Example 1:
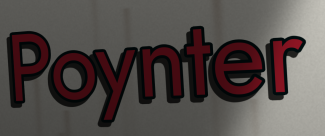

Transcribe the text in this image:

Poynter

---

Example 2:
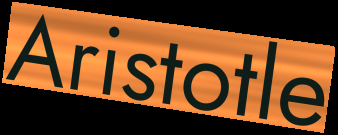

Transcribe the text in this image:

Aristotle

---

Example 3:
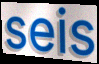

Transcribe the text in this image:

seis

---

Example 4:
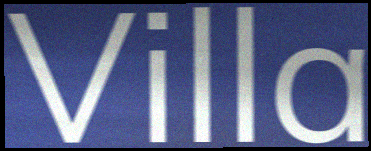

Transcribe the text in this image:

Villa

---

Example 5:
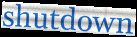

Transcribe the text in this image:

shutdown